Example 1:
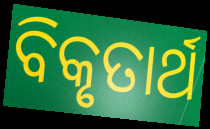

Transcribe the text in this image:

ବିକୃତାର୍ଥ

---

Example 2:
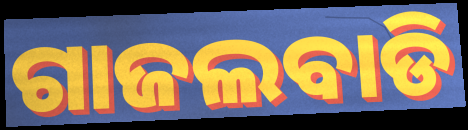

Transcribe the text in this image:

ଗାଜଲବାଡି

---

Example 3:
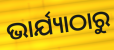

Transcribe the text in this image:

ଭାର୍ଯ୍ୟାଠାରୁ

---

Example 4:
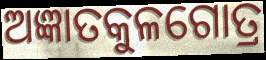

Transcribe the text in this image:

ଅଜ୍ଞାତକୁଳଗୋତ୍ର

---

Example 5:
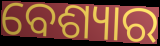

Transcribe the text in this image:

ବେଶ୍ୟାର